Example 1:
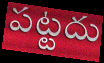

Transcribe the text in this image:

పట్టదు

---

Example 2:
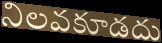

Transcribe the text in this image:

నిలవకూడదు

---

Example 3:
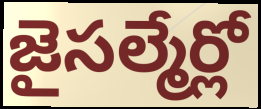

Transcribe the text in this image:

జైసల్మేర్లో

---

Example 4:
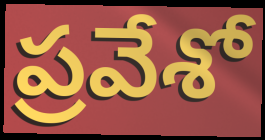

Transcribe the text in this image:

ప్రవేశో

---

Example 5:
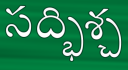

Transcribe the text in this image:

సద్భిశ్చ